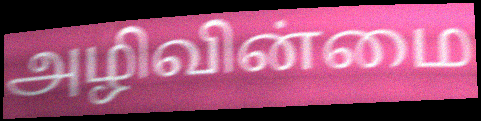
அழிவின்மை